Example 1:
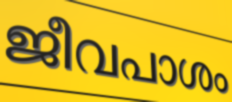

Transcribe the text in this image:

ജീവപാശം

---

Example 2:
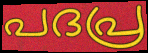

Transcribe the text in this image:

പദപ്ര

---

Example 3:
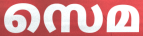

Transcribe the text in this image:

സെമ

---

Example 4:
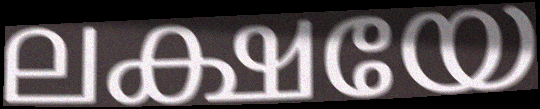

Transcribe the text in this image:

ലക്ഷയേ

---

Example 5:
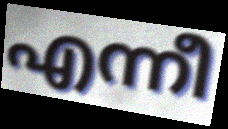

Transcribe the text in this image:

എന്നീ